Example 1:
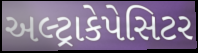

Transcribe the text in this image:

અલ્ટ્રાકેપેસિટર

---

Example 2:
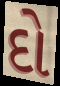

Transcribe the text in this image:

દો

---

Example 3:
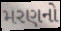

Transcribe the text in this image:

મરણનો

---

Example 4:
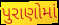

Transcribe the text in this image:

પુરાણોમાં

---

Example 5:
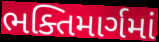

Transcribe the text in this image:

ભક્તિમાર્ગમાં